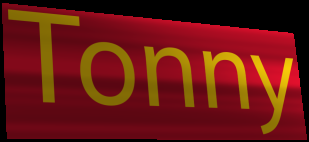
Tonny